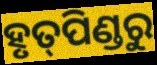
ହୃତ୍‌ପିଣ୍ଡରୁ